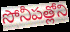
సోనీపత్లోని